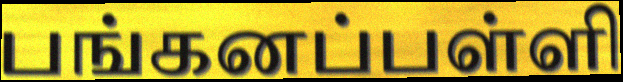
பங்கனப்பள்ளி